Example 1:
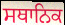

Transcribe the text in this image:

ਸਥਾਨਿਕ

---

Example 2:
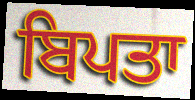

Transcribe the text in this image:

ਬਿਪਤਾ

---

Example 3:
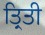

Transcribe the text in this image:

ਤ੍ਰਿਤੀ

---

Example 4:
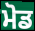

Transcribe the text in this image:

ਮੋਡ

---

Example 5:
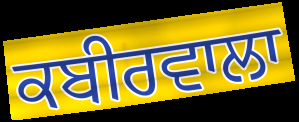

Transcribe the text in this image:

ਕਬੀਰਵਾਲਾ